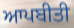
ਆਪਬੀਤੀ